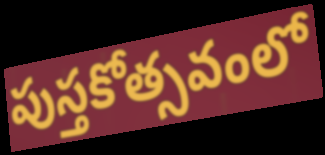
పుస్తకోత్సవంలో